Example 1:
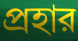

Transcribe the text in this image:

প্রহার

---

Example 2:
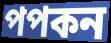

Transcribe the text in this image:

পপকন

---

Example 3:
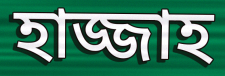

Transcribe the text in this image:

হাজ্জাহ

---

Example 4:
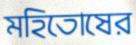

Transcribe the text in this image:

মহিতোষের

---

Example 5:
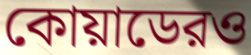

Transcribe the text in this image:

কোয়াডেরও